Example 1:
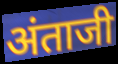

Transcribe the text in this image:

अंताजी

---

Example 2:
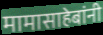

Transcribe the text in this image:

मामासाहेबांनी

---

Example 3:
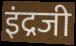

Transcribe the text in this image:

इंद्रजी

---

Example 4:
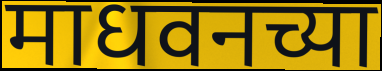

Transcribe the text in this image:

माधवनच्या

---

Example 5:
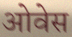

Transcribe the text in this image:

ओवेस